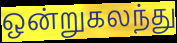
ஒன்றுகலந்து